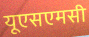
यूएसएमसी